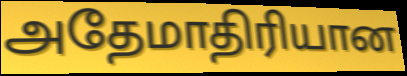
அதேமாதிரியான